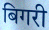
बिगरी